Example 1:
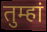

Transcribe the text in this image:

तुम्हां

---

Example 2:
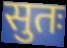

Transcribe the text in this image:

सुतः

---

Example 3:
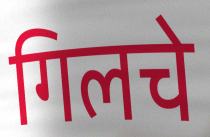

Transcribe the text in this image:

गिलचे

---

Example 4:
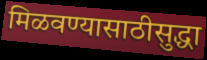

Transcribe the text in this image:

मिळवण्यासाठीसुद्धा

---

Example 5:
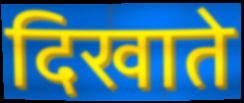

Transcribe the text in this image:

दिखाते